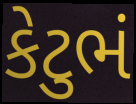
કેટુભં